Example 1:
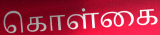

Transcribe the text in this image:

கொள்கை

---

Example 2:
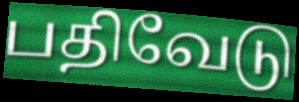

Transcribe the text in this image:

பதிவேடு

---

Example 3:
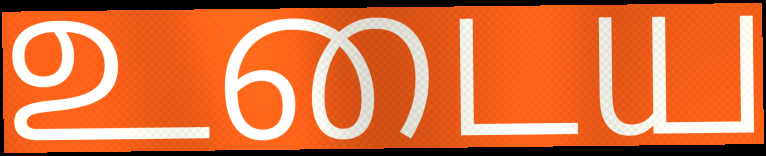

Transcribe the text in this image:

உடைய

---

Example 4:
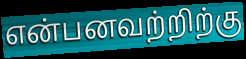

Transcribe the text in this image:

என்பனவற்றிற்கு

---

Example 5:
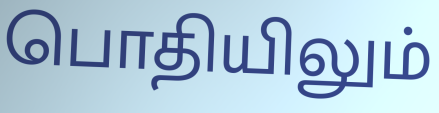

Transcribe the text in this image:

பொதியிலும்